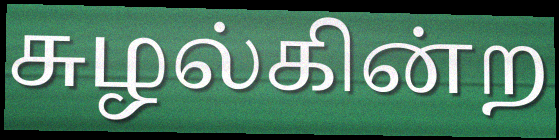
சுழல்கின்ற